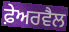
ਫ਼ੇਅਰਵੈਲ